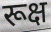
रूक्ष